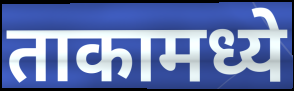
ताकामध्ये